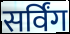
सर्विंग